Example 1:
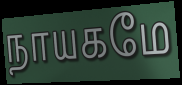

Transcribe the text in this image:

நாயகமே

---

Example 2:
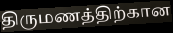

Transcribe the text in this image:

திருமணத்திற்கான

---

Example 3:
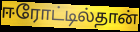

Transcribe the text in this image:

ஈரோட்டில்தான்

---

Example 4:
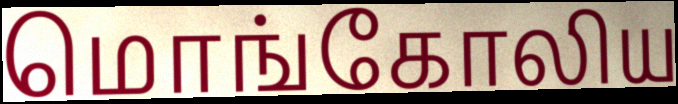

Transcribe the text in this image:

மொங்கோலிய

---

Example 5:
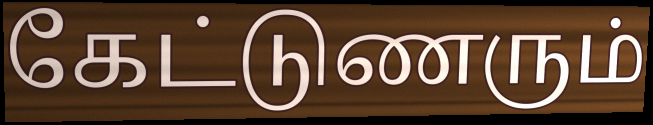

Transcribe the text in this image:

கேட்டுணரும்